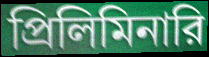
প্রিলিমিনারি